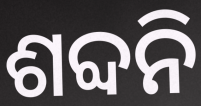
ଶବ୍ଦନି